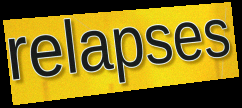
relapses